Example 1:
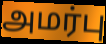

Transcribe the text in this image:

அமர்பு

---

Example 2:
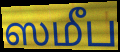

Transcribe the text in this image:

ஸமீப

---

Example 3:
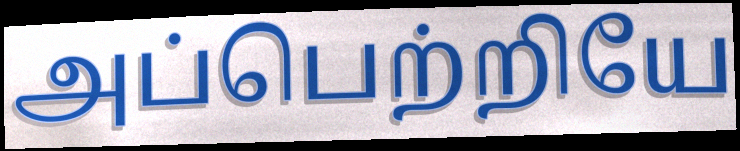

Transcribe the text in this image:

அப்பெற்றியே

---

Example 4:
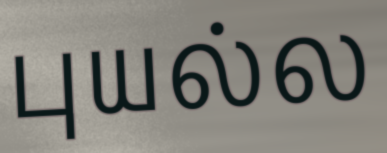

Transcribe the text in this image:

புயல்ல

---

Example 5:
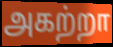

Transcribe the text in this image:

அகற்றா